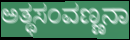
ಅತ್ಥಸಂವಣ್ಣನಾ